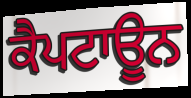
ਕੈਪਟਾਊਨ